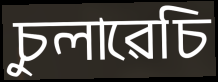
চুলাৱেচি